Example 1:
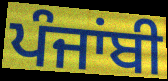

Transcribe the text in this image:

ਪੰਜਾਂਬੀ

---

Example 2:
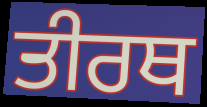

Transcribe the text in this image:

ਤੀਰਥ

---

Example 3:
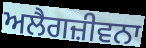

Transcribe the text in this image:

ਅਲੈਗਜ਼ੀਵਨਾ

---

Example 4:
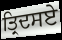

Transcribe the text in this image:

ਤ੍ਰਿਦਸਏ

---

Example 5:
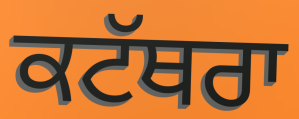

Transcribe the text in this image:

ਕਟੱਥਰਾ